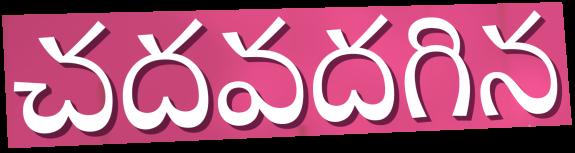
చదవదగిన